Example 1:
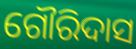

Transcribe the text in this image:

ଗୌରିଦାସ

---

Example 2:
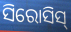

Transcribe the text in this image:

ସିରୋସିସ୍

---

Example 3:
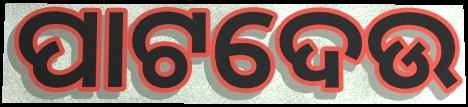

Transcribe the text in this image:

ପାଟଦେଉ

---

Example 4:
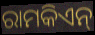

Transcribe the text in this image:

ରାମକିଏନ୍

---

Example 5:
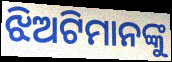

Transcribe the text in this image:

ଝିଅଟିମାନଙ୍କୁ